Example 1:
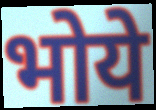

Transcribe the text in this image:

भोये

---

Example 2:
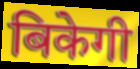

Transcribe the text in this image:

बिकेगी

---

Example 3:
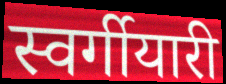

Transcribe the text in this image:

स्वर्गीयारी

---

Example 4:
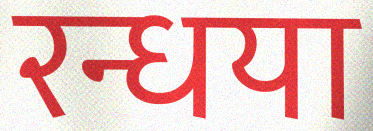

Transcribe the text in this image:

रन्धया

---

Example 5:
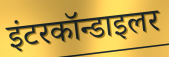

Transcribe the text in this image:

इंटरकॉन्डाइलर